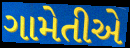
ગામેતીએ